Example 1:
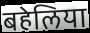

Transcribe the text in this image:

बहेलिया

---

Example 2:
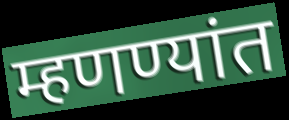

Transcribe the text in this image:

म्हणण्यांत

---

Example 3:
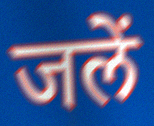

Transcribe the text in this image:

जलें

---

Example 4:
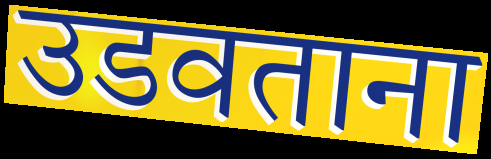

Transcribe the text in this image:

उडवताना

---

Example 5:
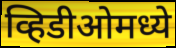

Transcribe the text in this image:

व्हिडीओमध्ये